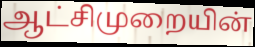
ஆட்சிமுறையின்